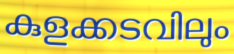
കുളക്കടവിലും